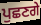
ਪੁਛਣਗੇ